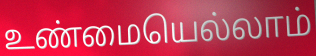
உண்மையெல்லாம்